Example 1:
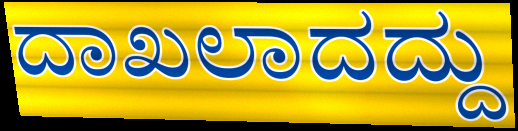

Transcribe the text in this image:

ದಾಖಲಾದದ್ದು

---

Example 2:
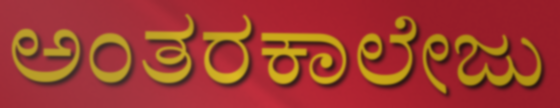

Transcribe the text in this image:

ಅಂತರಕಾಲೇಜು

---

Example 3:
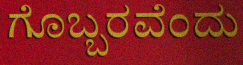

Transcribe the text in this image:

ಗೊಬ್ಬರವೆಂದು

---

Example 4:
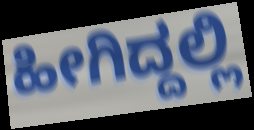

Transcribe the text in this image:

ಹೀಗಿದ್ದಲ್ಲಿ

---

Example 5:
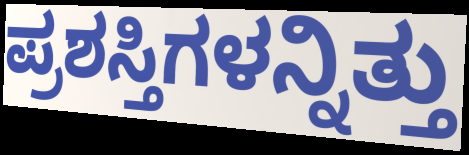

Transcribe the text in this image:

ಪ್ರಶಸ್ತಿಗಳನ್ನಿತ್ತು